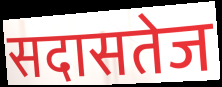
सदासतेज